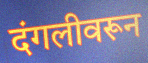
दंगलीवरून